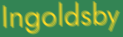
Ingoldsby